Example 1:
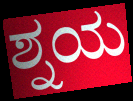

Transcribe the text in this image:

ಶ್ನಯ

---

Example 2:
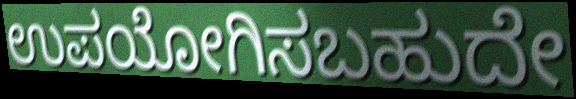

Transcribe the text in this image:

ಉಪಯೋಗಿಸಬಹುದೇ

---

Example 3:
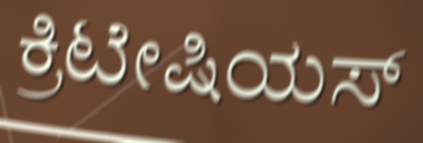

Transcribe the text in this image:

ಕ್ರಿಟೇಷಿಯಸ್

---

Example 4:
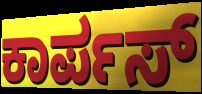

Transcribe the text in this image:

ಕಾರ್ಪಸ್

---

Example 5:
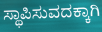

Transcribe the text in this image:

ಸ್ಥಾಪಿಸುವದಕ್ಕಾಗಿ